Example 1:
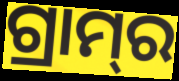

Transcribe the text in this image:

ଗ୍ରାମ୍‌ର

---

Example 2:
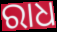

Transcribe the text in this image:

ରାଧ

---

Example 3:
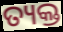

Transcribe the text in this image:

ତ୍ୟକ୍ତ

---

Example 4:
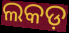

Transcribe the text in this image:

ଲକଡ଼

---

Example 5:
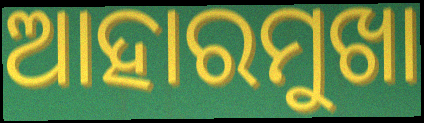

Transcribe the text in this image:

ଆହାରମୁଖା